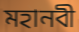
মহানবী